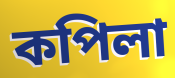
কপিলা